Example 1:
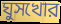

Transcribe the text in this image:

ঘুসখোর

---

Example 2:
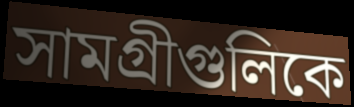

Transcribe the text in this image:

সামগ্রীগুলিকে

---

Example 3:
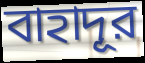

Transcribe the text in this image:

বাহাদূর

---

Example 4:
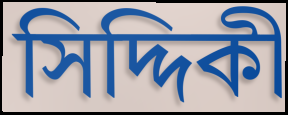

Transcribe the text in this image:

সিদ্দিকী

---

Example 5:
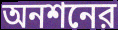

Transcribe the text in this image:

অনশনের